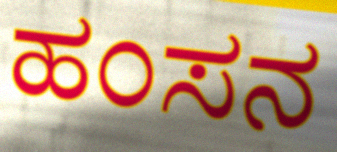
ಹಂಸನ